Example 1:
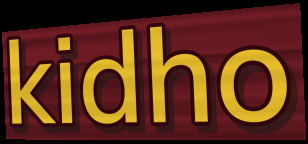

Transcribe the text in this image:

kidho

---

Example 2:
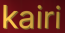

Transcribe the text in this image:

kairi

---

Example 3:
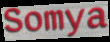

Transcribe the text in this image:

Somya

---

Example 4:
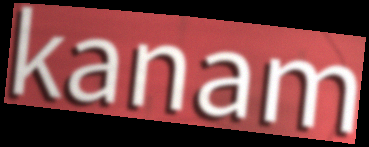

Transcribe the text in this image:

kanam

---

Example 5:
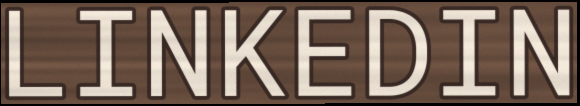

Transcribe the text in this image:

LINKEDIN